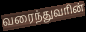
வரைந்துவரின்